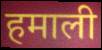
हमाली